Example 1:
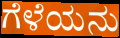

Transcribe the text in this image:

ಗೆಳೆಯನು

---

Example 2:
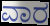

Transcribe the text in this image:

ವಾರ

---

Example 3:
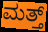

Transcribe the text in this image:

ಮತ್ತ್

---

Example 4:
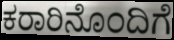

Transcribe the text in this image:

ಕರಾರಿನೊಂದಿಗೆ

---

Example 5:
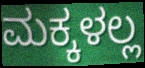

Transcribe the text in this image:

ಮಕ್ಕಳಲ್ಲ